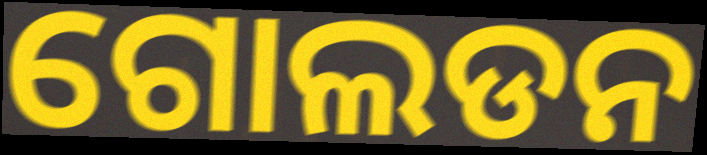
ଗୋଲଡନ